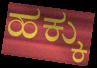
ಹಕ್ಕು